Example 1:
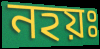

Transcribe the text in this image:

নহয়ঃ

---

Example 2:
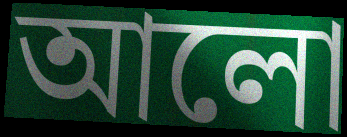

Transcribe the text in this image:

আলো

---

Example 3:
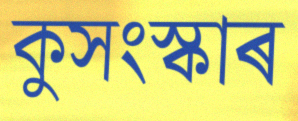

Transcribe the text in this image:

কুসংস্কাৰ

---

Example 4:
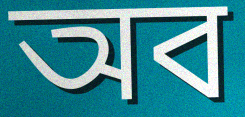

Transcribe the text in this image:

অব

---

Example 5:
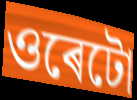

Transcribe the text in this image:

ওৰেটো